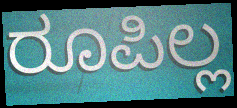
ರೂಪಿಲ್ಲ